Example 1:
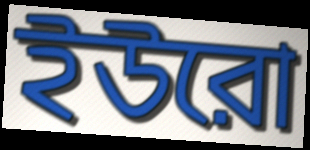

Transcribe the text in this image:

ইউরো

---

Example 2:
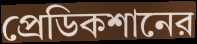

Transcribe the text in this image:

প্রেডিকশানের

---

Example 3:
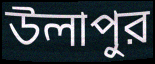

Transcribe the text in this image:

উলাপুর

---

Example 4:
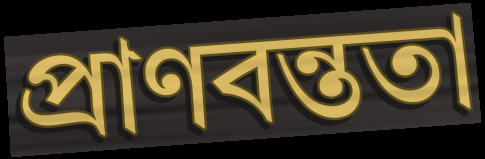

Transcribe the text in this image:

প্রাণবন্ততা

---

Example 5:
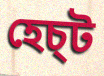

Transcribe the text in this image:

হেচ্ট